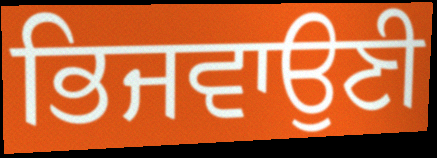
ਭਿਜਵਾਉਣੀ